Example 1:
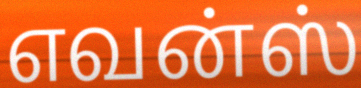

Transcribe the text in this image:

எவன்ஸ்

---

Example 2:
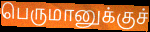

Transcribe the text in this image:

பெருமானுக்குச்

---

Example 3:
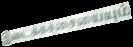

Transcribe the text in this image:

இடைக்கச்சையையும்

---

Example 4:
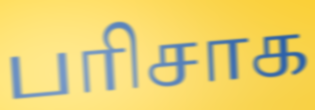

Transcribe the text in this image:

பரிசாக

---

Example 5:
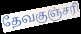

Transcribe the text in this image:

தேவகுஞ்சரி